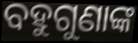
ବହୁଗୁଣାଙ୍କ